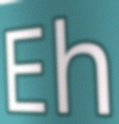
Eh